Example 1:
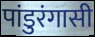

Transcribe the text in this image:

पांडुरंगासी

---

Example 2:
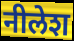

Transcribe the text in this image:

नीलेश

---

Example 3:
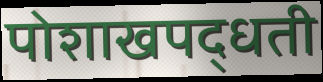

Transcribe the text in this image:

पोशाखपद्धती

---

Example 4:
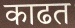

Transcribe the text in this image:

काढत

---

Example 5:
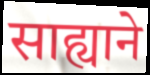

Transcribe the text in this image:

साह्याने